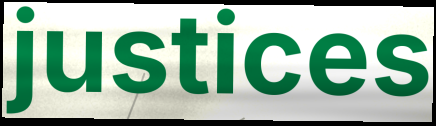
justices